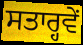
ਸਤਾਰ੍ਹਵੇਂ